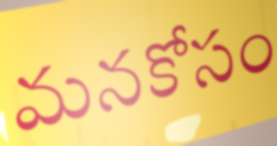
మనకోసం